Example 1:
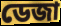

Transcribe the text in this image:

ডেজা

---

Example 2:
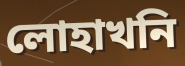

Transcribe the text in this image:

লোহাখনি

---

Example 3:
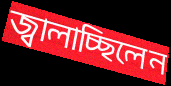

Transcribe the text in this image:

জ্বালাচ্ছিলেন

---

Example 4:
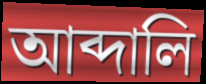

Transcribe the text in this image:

আব্দালি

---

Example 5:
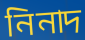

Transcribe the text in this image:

নিনাদ